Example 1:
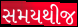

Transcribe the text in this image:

સમયથીજ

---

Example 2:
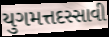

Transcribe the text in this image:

યુગમત્તદસ્સાવી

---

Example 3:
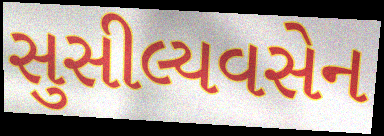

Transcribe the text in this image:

સુસીલ્યવસેન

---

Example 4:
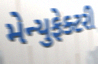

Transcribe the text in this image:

મેન્યુફેક્ટરી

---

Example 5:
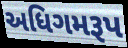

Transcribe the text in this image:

અધિગમરૂપ